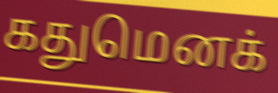
கதுமெனக்